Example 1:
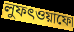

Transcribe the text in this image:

লুফৎওয়াফো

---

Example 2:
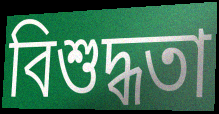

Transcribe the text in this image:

বিশুদ্ধতা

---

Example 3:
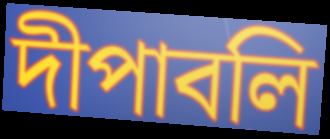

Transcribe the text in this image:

দীপাবলি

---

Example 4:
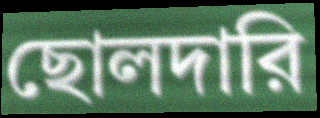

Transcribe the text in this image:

ছোলদারি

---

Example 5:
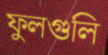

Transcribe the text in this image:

ফুলগুলি